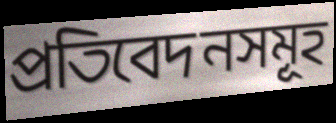
প্ৰতিবেদনসমূহ